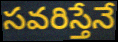
సవరిస్తేనే